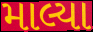
માલ્યા